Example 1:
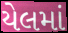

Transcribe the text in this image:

યેલમાં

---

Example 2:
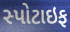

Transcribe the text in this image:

સ્પોટાઇફ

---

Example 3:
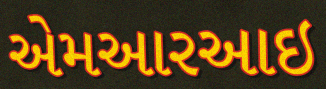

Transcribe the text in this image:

એમઆરઆઇ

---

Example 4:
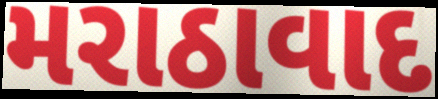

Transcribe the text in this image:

મરાઠાવાદ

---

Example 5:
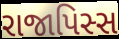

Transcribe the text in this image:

રાજાપિસ્સ